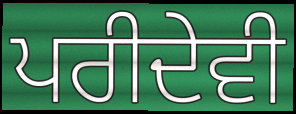
ਪਰੀਦੇਵੀ